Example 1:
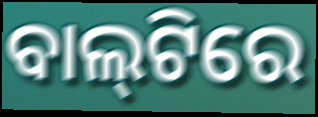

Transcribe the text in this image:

ବାଲ୍‌ଟିରେ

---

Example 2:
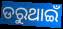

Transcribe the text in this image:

ଡରୁଥାଇଁ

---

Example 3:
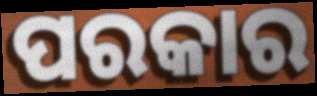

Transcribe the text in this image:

ପରକାର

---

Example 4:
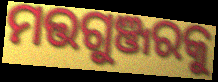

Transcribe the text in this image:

ମତ୍ତଗୁଞ୍ଜରକୁ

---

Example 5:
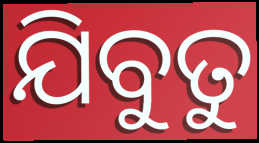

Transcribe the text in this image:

ଯିବୁତୁ